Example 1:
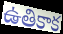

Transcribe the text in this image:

ఉతికాక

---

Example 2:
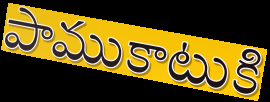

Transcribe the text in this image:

పాముకాటుకి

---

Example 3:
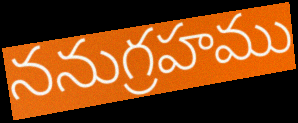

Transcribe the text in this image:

ననుగ్రహము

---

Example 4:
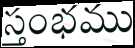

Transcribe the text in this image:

స్తంభము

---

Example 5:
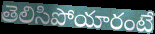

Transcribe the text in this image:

తెలిసిపోయారంటే